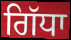
ਗਿੱਧਾ